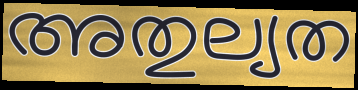
അതുല്യത